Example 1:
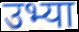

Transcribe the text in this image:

उभ्या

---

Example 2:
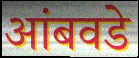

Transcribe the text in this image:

आंबवडे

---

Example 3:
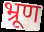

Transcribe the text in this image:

भ्रूण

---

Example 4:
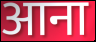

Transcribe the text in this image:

आना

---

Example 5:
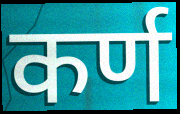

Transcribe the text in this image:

कर्ण